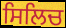
ਸਿਲਿਚ